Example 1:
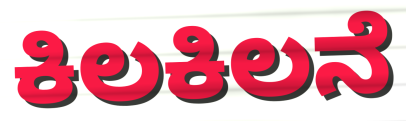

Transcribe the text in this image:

ಕಿಲಕಿಲನೆ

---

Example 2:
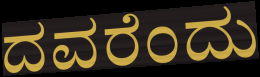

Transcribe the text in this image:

ದವರೆಂದು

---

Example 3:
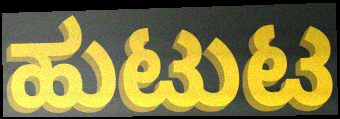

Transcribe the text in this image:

ಹುಟುಟ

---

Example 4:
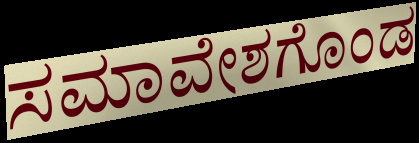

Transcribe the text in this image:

ಸಮಾವೇಶಗೊಂಡ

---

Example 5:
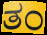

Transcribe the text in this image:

ತಂ